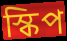
স্কিপ